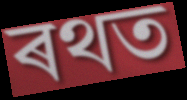
ৰথত